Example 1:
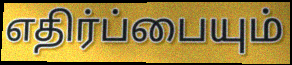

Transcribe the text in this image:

எதிர்ப்பையும்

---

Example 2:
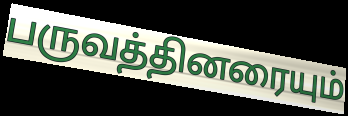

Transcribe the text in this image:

பருவத்தினரையும்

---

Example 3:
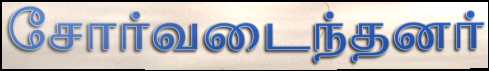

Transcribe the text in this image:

சோர்வடைந்தனர்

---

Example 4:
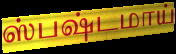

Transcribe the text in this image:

ஸ்பஷ்டமாய்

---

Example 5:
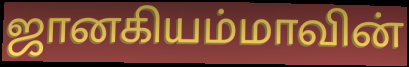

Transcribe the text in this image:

ஜானகியம்மாவின்